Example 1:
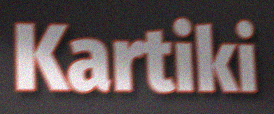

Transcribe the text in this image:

Kartiki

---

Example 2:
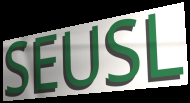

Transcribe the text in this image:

SEUSL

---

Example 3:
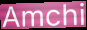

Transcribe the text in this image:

Amchi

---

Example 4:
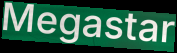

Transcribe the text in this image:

Megastar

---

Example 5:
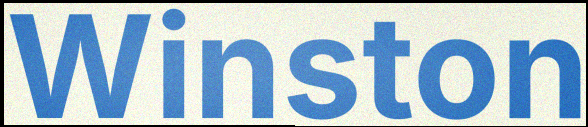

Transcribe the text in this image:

Winston